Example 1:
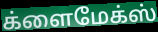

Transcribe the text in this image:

க்ளைமேக்ஸ்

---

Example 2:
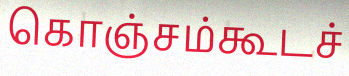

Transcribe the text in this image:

கொஞ்சம்கூடச்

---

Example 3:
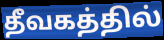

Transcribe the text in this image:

தீவகத்தில்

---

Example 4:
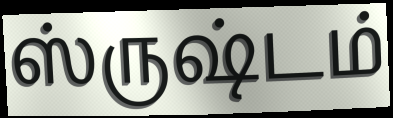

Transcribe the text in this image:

ஸ்ருஷ்டம்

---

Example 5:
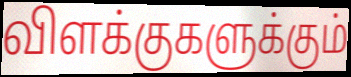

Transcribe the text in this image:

விளக்குகளுக்கும்